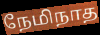
நேமிநாத